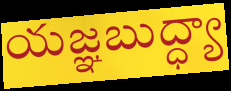
యజ్ఞబుద్ధ్యా